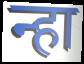
न्हा